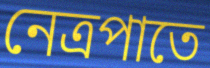
নেত্রপাতে